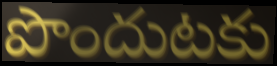
పొందుటకు